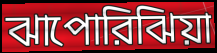
ঝাপোরিঝিয়া